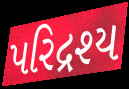
પરિદ્રશ્ય